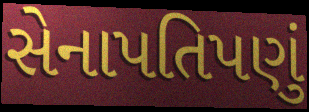
સેનાપતિપણું